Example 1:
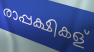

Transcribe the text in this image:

രാപ്പക്ഷികള്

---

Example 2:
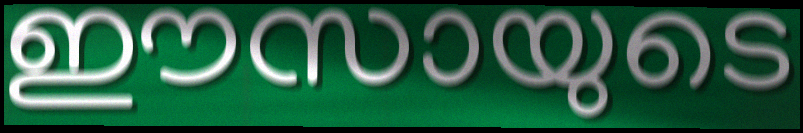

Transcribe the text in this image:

ഈസായുടെ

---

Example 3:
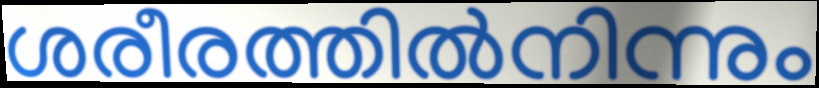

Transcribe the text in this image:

ശരീരത്തിൽനിന്നും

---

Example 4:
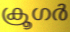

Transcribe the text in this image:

ക്രൂഗർ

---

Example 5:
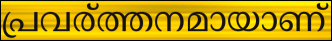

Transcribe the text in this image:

പ്രവര്ത്തനമായാണ്